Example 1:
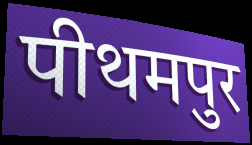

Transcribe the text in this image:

पीथमपुर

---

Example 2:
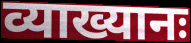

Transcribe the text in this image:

व्याख्यानः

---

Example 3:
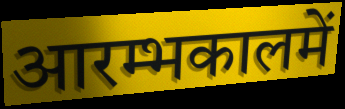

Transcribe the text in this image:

आरम्भकालमें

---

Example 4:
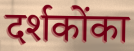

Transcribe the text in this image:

दर्शकोंका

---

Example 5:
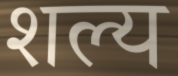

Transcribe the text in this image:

शल्य